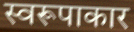
स्वरूपाकार